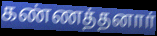
கண்ணத்தனார்